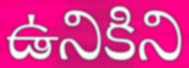
ఉనికిని